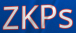
ZKPs